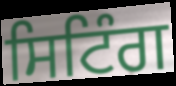
ਸਿਟਿੰਗ